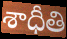
శాధీతి